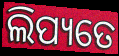
ଲିପ୍ୟତେ